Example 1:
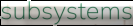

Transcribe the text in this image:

subsystems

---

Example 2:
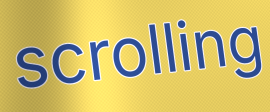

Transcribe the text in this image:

scrolling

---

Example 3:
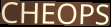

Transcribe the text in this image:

CHEOPS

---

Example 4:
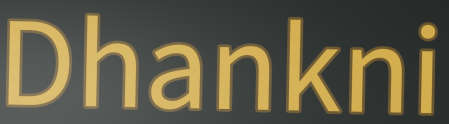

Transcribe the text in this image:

Dhankni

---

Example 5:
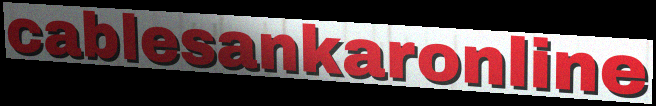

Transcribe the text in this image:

cablesankaronline